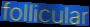
follicular